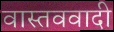
वास्तववादी